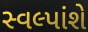
સ્વલ્પાંશે